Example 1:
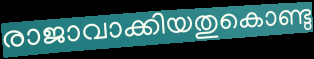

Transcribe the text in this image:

രാജാവാക്കിയതുകൊണ്ടു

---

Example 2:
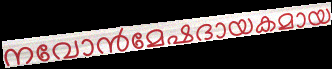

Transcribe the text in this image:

നവോൻമേഷദായകമായ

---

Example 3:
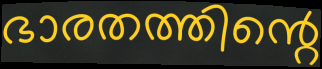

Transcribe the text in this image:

ഭാരതത്തിന്റെ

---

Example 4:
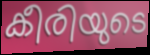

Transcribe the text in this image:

കീരിയുടെ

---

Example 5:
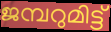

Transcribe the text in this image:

ജമ്പറുമിട്ട്